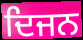
ਦਿਜਨ